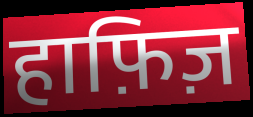
हाफ़िज़